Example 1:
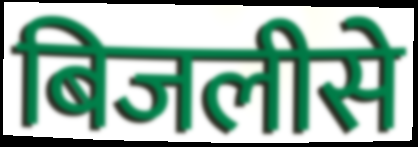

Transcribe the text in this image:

बिजलीसे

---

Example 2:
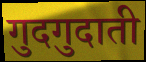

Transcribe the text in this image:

गुदगुदाती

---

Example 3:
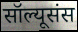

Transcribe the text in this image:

सॉल्यूसंस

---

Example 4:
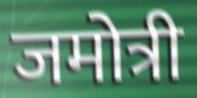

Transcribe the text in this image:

जमोत्री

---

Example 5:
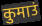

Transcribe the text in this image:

कुमाउं